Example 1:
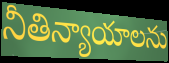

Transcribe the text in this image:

నీతిన్యాయాలను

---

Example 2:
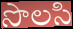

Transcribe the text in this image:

సొలసి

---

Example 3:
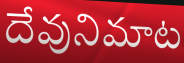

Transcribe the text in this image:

దేవునిమాట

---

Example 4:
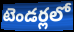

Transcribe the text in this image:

టెండర్లలో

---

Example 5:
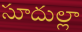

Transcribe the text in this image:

సూదుల్లా